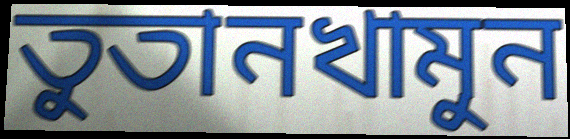
তুতানখামুন